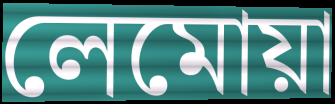
লেমোয়া